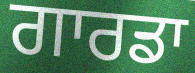
ਗਾਰਡਾ